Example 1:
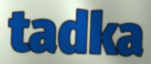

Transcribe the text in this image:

tadka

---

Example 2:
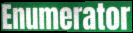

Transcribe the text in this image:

Enumerator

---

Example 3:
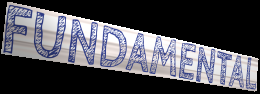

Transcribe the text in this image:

FUNDAMENTAL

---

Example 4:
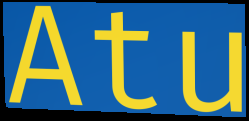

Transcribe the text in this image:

Atu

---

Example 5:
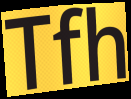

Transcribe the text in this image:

Tfh